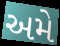
અમે